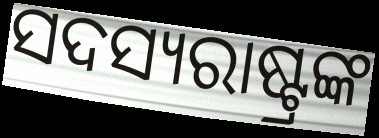
ସଦସ୍ୟରାଷ୍ଟ୍ରଙ୍କ